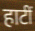
हाटीं